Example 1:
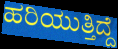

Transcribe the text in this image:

ಹರಿಯುತ್ತಿದ್ದೆ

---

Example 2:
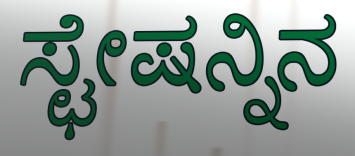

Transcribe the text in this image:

ಸ್ಟೇಷನ್ನಿನ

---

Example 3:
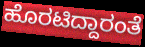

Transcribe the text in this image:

ಹೊರಟಿದ್ದಾರಂತೆ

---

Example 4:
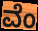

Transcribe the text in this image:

ವೆಂ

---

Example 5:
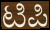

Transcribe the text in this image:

ಟಿಪಿ